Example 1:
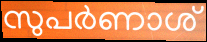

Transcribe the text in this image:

സുപർണാശ്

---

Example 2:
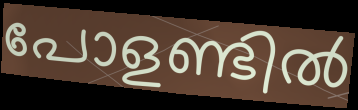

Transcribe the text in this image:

പോളണ്ടിൽ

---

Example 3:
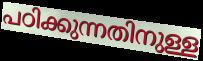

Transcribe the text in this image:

പഠിക്കുന്നതിനുള്ള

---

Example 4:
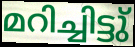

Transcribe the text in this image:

മറിച്ചിട്ടു്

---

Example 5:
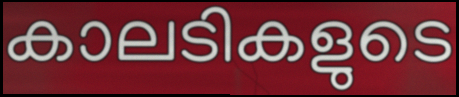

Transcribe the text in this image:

കാലടികളുടെ